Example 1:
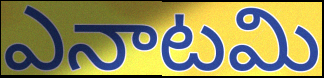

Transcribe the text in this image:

ఎనాటమి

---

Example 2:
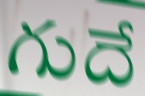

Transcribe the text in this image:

గుదే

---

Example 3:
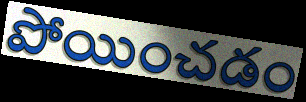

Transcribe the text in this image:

పోయించడం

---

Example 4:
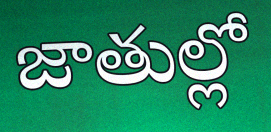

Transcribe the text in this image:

జాతుల్లో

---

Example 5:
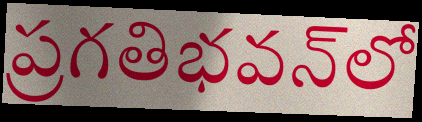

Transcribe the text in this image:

ప్రగతిభవన్‌లో